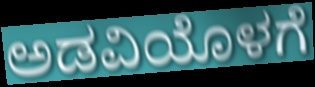
ಅಡವಿಯೊಳಗೆ